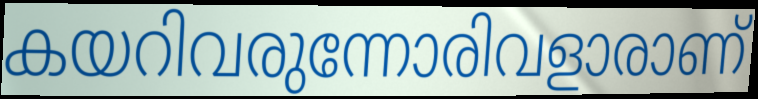
കയറിവരുന്നോരിവളാരാണ്